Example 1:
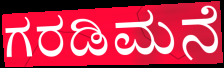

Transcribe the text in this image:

ಗರಡಿಮನೆ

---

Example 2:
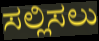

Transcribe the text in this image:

ಸಲ್ಲಿಸಲು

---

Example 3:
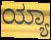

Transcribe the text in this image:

ಯ್ಯಾ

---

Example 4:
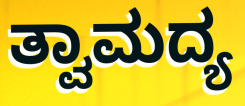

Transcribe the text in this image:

ತ್ವಾಮದ್ಯ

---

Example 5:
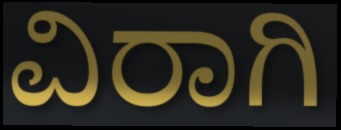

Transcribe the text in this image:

ವಿರಾಗಿ